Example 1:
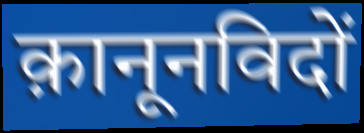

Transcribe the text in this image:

क़ानूनविदों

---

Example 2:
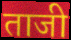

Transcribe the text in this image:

ताजी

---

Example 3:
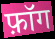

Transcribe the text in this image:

फ़ॉग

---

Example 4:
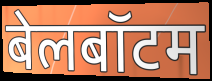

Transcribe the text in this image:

बेलबॉटम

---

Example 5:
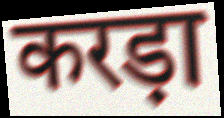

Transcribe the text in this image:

करड़ा